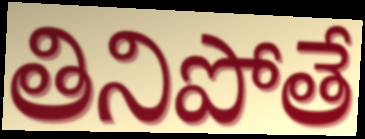
తినిపోతే